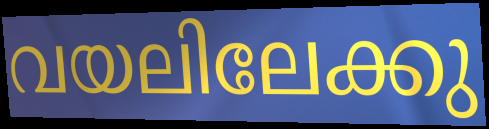
വയലിലേക്കു